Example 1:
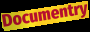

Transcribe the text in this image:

Documentry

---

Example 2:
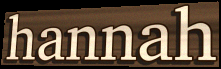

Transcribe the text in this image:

hannah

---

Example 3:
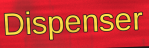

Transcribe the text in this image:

Dispenser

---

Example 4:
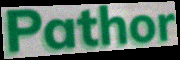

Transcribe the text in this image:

Pathor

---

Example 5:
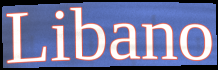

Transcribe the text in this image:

Libano